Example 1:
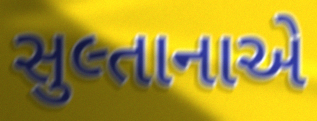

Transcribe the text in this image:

સુલ્તાનાએ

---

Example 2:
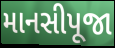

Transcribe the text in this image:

માનસીપૂજા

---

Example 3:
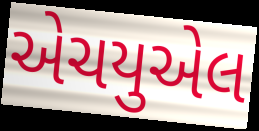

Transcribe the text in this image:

એચયુએલ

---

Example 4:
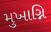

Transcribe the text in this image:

મુખાગ્નિ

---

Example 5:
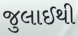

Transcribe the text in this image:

જુલાઈથી